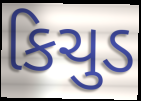
કિચુડ